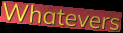
Whatevers